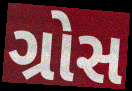
ગ્રોસ